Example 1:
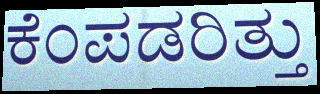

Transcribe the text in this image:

ಕೆಂಪಡರಿತ್ತು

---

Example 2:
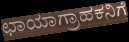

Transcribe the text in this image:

ಛಾಯಾಗ್ರಾಹಕನಿಗೆ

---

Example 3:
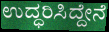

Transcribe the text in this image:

ಉದ್ಧರಿಸಿದ್ದೇನೆ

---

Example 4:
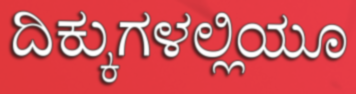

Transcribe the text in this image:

ದಿಕ್ಕುಗಳಲ್ಲಿಯೂ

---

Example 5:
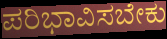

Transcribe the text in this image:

ಪರಿಭಾವಿಸಬೇಕು